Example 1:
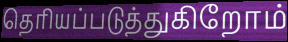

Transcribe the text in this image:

தெரியப்படுத்துகிறோம்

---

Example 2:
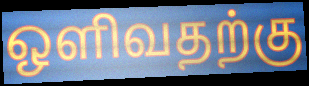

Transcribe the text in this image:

ஒளிவதற்கு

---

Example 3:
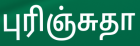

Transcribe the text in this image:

புரிஞ்சுதா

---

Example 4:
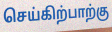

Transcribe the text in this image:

செய்கிற்பாற்கு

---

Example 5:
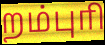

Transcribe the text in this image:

றம்புரி